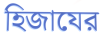
হিজাযের